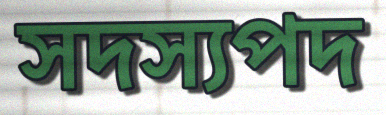
সদস্যপদ